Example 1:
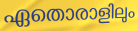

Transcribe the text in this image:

ഏതൊരാളിലും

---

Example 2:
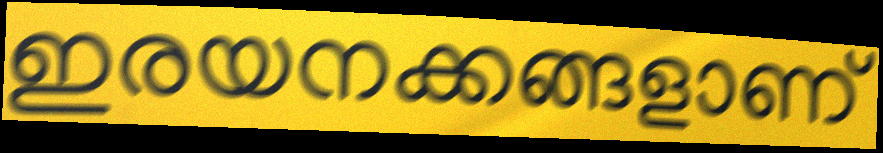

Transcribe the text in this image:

ഇരയനക്കങ്ങളാണ്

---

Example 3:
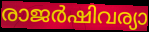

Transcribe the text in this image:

രാജർഷിവര്യാ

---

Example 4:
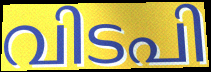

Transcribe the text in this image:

വിടപി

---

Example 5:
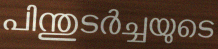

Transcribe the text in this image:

പിന്തുടർച്ചയുടെ